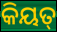
କିୟତ୍